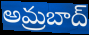
అమ్రబాద్